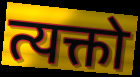
त्यक्तो